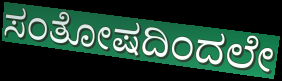
ಸಂತೋಷದಿಂದಲೇ